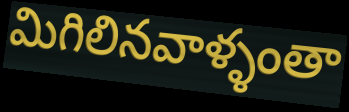
మిగిలినవాళ్ళంతా